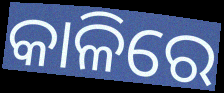
କାଳିରେ